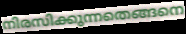
നിരസിക്കുന്നതെങ്ങനെ